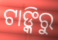
ଟାଙ୍କିରୁ